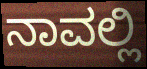
ನಾವಲ್ಲಿ